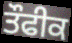
ਤੌਫੀਕ